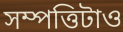
সম্পত্তিটাও